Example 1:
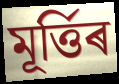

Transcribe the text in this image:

মূৰ্ত্তিৰ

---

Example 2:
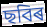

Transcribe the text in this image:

ছবিৰ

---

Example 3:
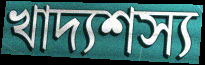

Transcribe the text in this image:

খাদ্যশস্য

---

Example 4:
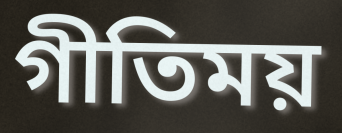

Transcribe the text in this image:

গীতিময়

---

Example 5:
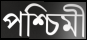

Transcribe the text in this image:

পশ্চিমী